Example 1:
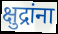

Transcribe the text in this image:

क्षुद्रांना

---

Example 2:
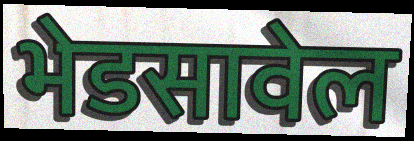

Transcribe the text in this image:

भेडसावेल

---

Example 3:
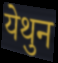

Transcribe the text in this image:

येथुन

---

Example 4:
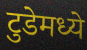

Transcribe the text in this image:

टुडेमध्ये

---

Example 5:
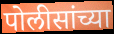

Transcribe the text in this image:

पोलीसांच्या